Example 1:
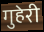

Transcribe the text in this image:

गुहेरी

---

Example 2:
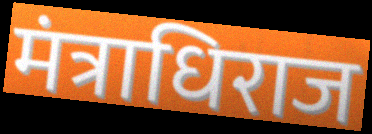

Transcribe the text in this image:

मंत्राधिराज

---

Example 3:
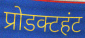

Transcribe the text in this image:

प्रोडक्टहंट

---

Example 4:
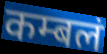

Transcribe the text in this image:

कम्बलं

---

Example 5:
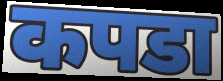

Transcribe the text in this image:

कपडा